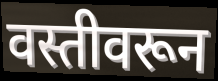
वस्तीवरून